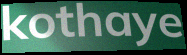
kothaye